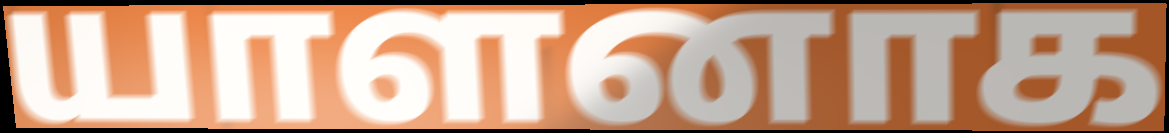
யாளனாக